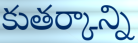
కుతర్కాన్ని